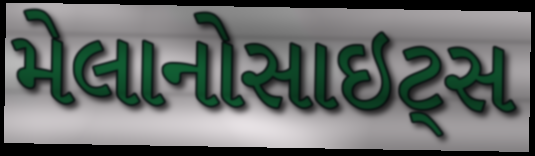
મેલાનોસાઇટ્સ